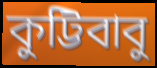
কুট্টিবাবু